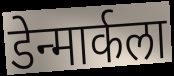
डेन्मार्कला